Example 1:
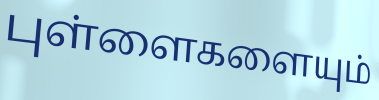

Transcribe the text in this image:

புள்ளைகளையும்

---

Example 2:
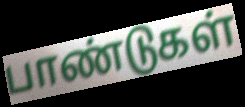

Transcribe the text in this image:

பாண்டுகள்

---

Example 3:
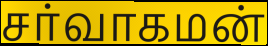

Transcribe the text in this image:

சர்வாகமன்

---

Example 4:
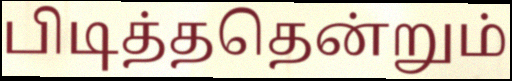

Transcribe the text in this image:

பிடித்ததென்றும்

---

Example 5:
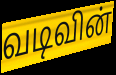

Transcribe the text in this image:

வடிவின்